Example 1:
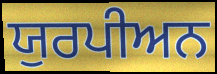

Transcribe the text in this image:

ਯੁਰਪੀਅਨ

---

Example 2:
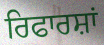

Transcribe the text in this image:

ਰਿਫਾਰਸ਼ਾਂ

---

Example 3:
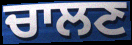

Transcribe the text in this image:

ਚਾਲਣ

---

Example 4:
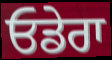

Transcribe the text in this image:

ਓਡੇਰਾ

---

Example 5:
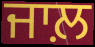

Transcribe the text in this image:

ਜਾਲ਼